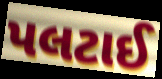
પલટાઈ